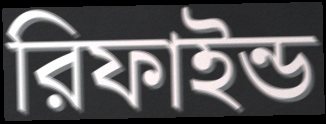
রিফাইন্ড